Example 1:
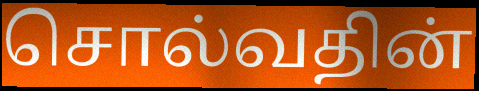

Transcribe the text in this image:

சொல்வதின்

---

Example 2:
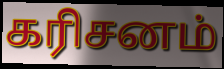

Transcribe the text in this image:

கரிசனம்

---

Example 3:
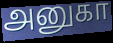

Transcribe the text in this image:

அனுகா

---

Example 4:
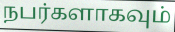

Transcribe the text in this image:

நபர்களாகவும்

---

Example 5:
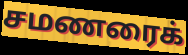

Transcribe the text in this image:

சமணரைக்